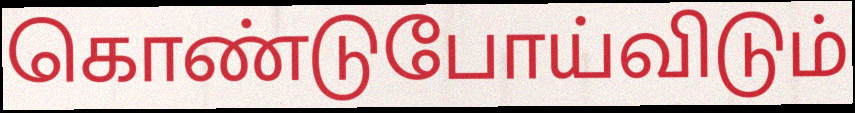
கொண்டுபோய்விடும்